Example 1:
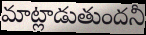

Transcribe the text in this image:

మాట్లాడుతుందనీ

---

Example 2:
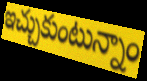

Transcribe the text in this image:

ఇచ్చుకుంటున్నాం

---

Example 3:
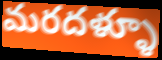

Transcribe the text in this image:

మరదళ్ళూ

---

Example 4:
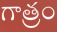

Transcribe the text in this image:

గాత్రం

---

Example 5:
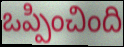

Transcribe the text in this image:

ఒప్పించింది